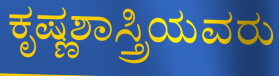
ಕೃಷ್ಣಶಾಸ್ತ್ರಿಯವರು